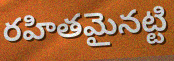
రహితమైనట్టి